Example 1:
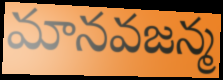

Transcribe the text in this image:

మానవజన్మ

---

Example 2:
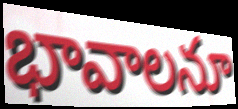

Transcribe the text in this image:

భావాలనూ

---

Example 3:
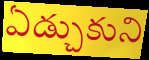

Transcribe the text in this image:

ఏడ్చుకుని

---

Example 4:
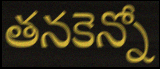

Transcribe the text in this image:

తనకెన్నో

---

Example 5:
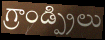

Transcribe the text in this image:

గ్రాండ్ప్రిలు